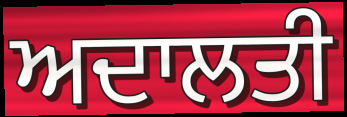
ਅਦਾਲਤੀ